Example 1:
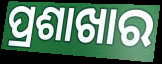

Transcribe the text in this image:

ପ୍ରଶାଖାର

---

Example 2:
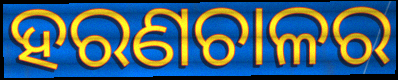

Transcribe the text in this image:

ହରଣଚାଳର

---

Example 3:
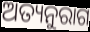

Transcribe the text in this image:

ଅତ୍ୟନୁରାଗ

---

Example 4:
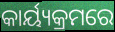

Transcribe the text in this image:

କାର୍ୟ୍ୟକ୍ରମରେ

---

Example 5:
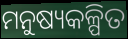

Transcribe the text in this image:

ମନୁଷ୍ୟକଳ୍ପିତ